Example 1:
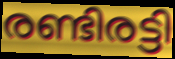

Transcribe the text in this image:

രണ്ടിരട്ടി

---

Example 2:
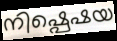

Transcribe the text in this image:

നിഷ്പെഷയ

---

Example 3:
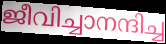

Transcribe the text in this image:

ജീവിച്ചാനന്ദിച്ച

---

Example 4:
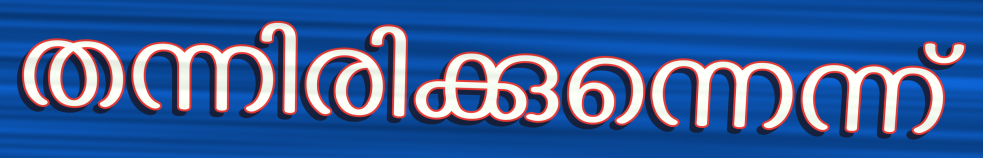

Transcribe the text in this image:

തന്നിരിക്കുന്നെന്ന്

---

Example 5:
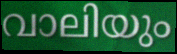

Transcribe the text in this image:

വാലിയും